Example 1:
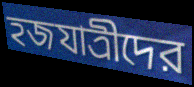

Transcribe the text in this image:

হজযাত্রীদের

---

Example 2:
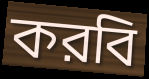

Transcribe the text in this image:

করবি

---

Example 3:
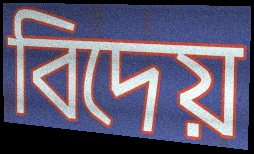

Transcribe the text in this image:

বিদেয়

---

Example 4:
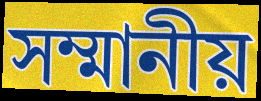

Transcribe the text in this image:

সম্মানীয়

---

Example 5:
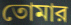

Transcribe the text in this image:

তোমার